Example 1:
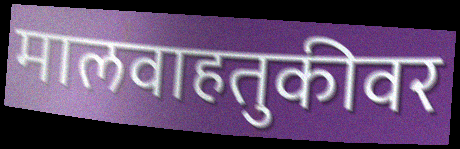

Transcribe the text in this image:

मालवाहतुकीवर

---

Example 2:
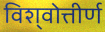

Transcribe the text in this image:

विश्वोत्तीर्ण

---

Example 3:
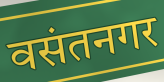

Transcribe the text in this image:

वसंतनगर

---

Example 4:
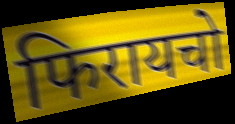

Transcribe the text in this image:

फिरायचो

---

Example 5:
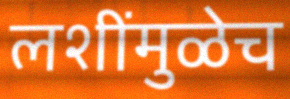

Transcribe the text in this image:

लशींमुळेच